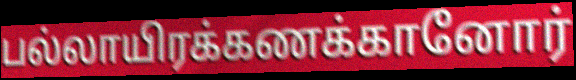
பல்லாயிரக்கணக்கானோர்